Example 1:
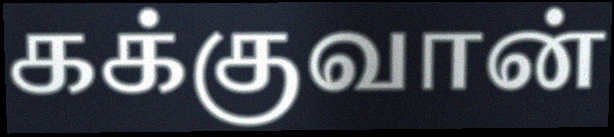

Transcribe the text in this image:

கக்குவான்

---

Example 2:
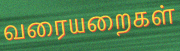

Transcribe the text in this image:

வரையறைகள்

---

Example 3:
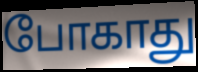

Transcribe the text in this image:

போகாது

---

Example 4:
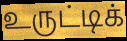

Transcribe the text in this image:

உருட்டிக்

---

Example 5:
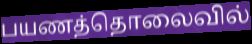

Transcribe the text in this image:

பயணத்தொலைவில்